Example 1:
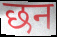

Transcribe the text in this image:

छन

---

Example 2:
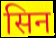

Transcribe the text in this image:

सिन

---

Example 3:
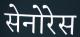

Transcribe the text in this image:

सेनोरेस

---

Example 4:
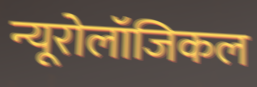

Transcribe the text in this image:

न्यूरोलॉजिकल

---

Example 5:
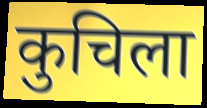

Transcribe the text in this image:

कुचिला